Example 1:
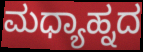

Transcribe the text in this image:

ಮಧ್ಯಾಹ್ನದ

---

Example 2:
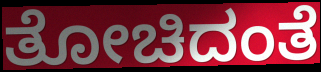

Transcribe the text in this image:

ತೋಚಿದಂತೆ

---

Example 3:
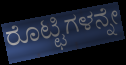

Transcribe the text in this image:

ರೊಟ್ಟಿಗಳನ್ನೇ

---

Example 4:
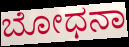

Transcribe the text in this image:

ಬೋಧನಾ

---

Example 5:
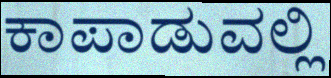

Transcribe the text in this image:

ಕಾಪಾಡುವಲ್ಲಿ